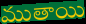
ముతాయి